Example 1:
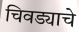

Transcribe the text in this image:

चिवड्याचे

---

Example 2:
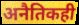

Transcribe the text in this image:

अनैतिकही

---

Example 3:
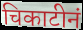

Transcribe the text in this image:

चिकाटीनं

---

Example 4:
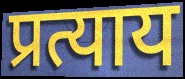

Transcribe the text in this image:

प्रत्याय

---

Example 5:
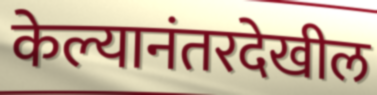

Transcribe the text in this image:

केल्यानंतरदेखील